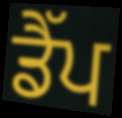
ਡੈੱਪ